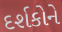
દર્શકોને